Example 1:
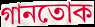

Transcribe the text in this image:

গানতোক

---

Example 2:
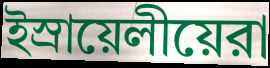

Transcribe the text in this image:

ইস্রায়েলীয়েরা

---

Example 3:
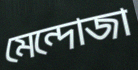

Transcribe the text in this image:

মেন্দোজা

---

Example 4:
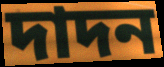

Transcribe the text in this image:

দাদন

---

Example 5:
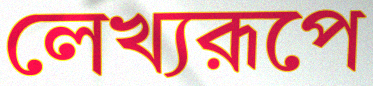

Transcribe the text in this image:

লেখ্যরূপে